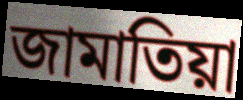
জামাতিয়া